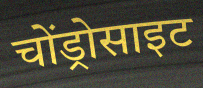
चोंड्रोसाइट